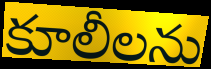
కూలీలను